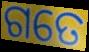
ଗତେ